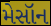
મેસૉન